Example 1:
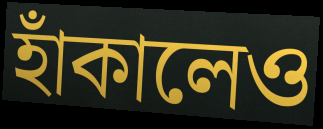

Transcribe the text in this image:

হাঁকালেও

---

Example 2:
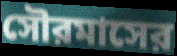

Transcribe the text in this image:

সৌরমাসের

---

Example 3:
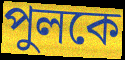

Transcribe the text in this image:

পুলকে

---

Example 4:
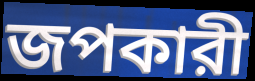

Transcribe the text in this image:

জপকারী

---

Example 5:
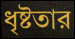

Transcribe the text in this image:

ধৃষ্টতার